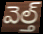
వెల్త్